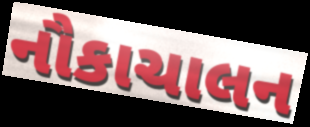
નૌકાચાલન